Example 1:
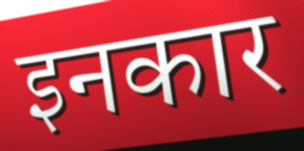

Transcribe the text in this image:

इनकार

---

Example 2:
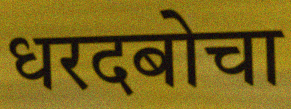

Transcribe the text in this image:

धरदबोचा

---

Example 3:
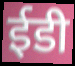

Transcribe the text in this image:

ईडी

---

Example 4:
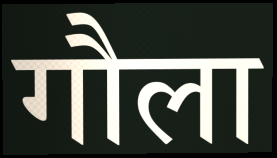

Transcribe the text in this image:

गौला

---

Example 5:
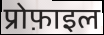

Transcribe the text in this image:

प्रोफ़ाइल